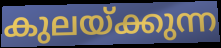
കുലയ്ക്കുന്ന